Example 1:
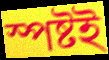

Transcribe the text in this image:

স্পষ্টই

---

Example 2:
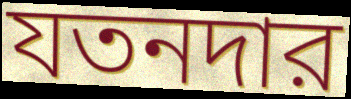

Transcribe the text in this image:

যতনদার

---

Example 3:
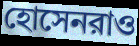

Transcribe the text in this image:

হোসেনরাও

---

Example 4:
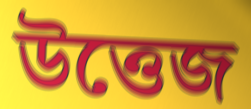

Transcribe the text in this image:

উত্তেজ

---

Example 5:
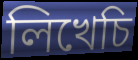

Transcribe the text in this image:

লিখেচি